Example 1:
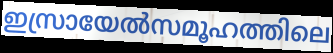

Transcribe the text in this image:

ഇസ്രായേൽസമൂഹത്തിലെ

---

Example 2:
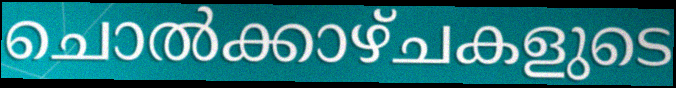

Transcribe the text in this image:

ചൊൽക്കാഴ്ചകളുടെ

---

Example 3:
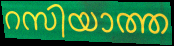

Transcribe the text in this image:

റസിയാത്ത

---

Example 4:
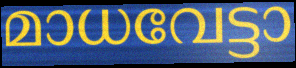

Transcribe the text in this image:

മാധവേട്ടാ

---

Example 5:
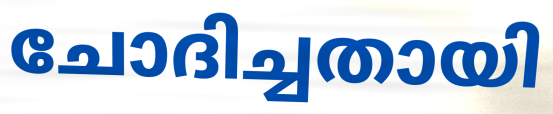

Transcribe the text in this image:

ചോദിച്ചതായി